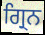
ਗ੍ਰਿਨ